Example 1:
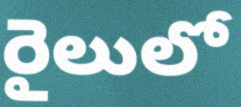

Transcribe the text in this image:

రైలులో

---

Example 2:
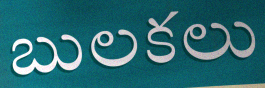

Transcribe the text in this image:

బులకలు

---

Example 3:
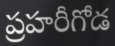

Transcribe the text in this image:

ప్రహరీగోడ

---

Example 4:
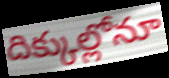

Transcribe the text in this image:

దిక్కుల్లోనూ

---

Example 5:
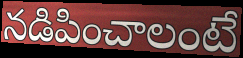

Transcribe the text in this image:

నడిపించాలంటే